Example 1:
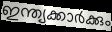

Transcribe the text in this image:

ഇന്ത്യക്കാർക്കും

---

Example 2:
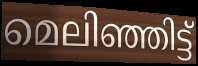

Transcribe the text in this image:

മെലിഞ്ഞിട്ട്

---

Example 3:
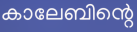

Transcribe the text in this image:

കാലേബിന്റെ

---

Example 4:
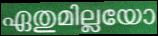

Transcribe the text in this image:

ഏതുമില്ലയോ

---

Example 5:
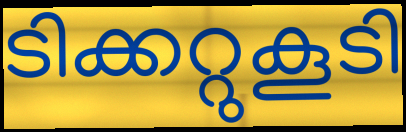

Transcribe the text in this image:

ടിക്കറ്റുകൂടി